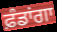
ਫ਼ੰਡਾਂਗਾ